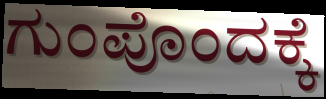
ಗುಂಪೊಂದಕ್ಕೆ